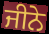
ਜੀਨੇ